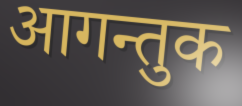
आगन्तुक